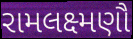
રામલક્ષ્મણૌ